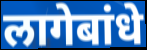
लागेबांधे